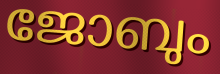
ജോബും